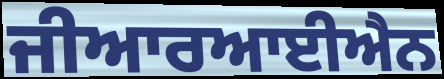
ਜੀਆਰਆਈਐਨ